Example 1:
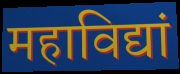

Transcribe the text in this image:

महाविद्यां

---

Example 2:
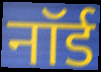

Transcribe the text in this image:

नॉर्ड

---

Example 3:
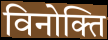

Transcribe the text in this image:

विनोक्ति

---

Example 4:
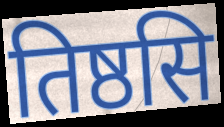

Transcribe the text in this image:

तिष्ठसि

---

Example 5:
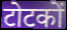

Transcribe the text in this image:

टोटकों